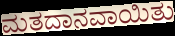
ಮತದಾನವಾಯಿತು